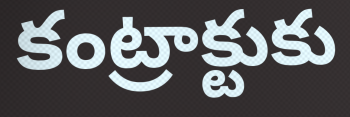
కంట్రాక్టుకు